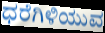
ಧರೆಗಿಳಿಯುವ